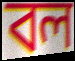
বল